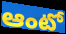
ఆంటో